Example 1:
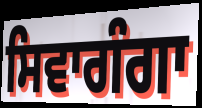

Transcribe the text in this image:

ਸਿਵਾਗੰਗਾ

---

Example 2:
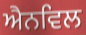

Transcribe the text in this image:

ਐਨਵਿਲ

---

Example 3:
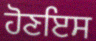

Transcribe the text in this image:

ਹੋਣਇਸ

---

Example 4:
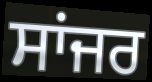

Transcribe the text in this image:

ਸਾਂਜਰ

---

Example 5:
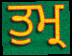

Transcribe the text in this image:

ਤੁਮ੍ਰ